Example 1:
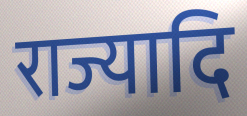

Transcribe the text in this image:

राज्यादि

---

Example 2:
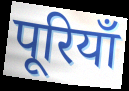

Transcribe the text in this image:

पूरियाँ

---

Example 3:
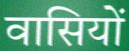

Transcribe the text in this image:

वासियों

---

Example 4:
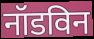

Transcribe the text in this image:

नॉडविन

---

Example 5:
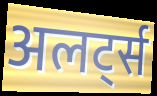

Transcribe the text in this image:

अलर्ट्स